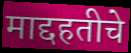
माद्दहतीचे